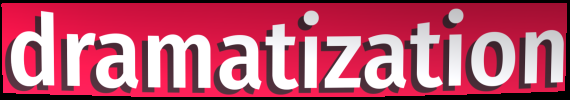
dramatization